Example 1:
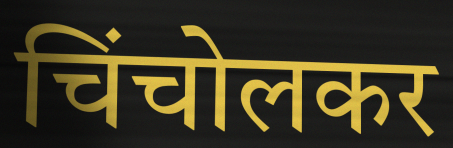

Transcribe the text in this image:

चिंचोलकर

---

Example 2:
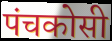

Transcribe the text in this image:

पंचकोसी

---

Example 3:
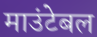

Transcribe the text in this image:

माउंटेबल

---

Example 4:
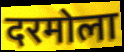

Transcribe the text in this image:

दरमोला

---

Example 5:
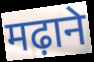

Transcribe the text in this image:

मढ़ाने